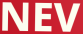
NEV